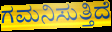
ಗಮನಿಸುತ್ತಿದೆ